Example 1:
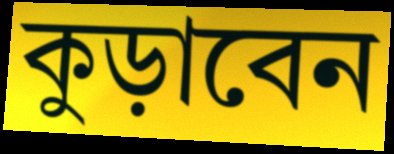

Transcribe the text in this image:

কুড়াবেন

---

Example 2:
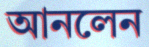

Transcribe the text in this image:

আনলেন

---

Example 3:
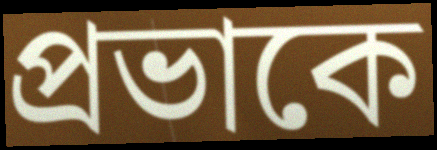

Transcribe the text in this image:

প্রভাকে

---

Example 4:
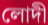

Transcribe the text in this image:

লোদী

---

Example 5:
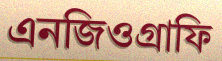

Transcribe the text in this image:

এনজিওগ্রাফি